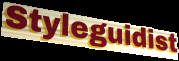
Styleguidist